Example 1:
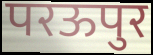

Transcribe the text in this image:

परऊपुर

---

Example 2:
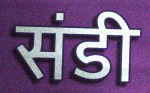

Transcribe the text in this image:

संडी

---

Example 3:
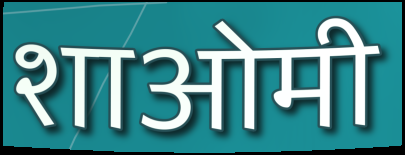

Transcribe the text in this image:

शाओमी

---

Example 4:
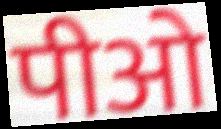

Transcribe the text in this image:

पीओ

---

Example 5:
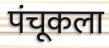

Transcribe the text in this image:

पंचूकला